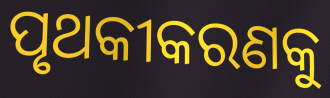
ପୃଥକୀକରଣକୁ